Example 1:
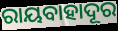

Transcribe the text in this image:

ରାୟବାହାଦୂର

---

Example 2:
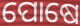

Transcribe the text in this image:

ପୋଷେ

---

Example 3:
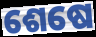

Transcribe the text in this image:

ଶେଷେ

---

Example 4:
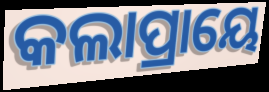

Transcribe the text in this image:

କଲାପ୍ରାୟେ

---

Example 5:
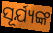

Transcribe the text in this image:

ସୂର୍ଯ୍ୟଙ୍କ